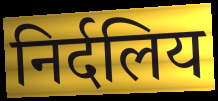
निर्दलिय